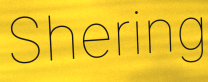
Shering